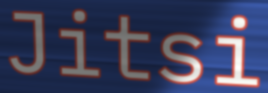
Jitsi